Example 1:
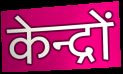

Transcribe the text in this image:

केन्द्रों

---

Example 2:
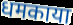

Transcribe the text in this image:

धमकाया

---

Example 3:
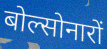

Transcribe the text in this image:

बोल्सोनारों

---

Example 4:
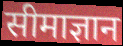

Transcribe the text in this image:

सीमाज्ञान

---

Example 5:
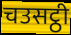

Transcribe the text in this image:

चउसट्ठी